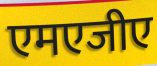
एमएजीए